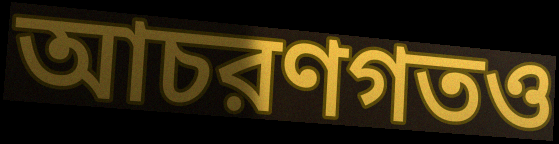
আচরণগতও